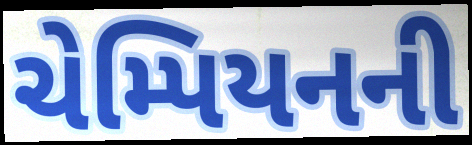
ચેમ્પિયનની